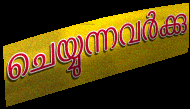
ചെയ്യുന്നവർക്കു